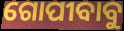
ଗୋପୀବାବୁ